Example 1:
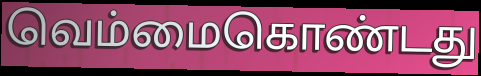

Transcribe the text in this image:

வெம்மைகொண்டது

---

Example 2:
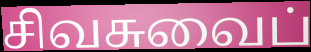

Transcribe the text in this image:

சிவசுவைப்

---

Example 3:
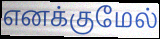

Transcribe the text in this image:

எனக்குமேல்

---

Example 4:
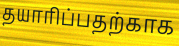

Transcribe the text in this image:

தயாரிப்பதற்காக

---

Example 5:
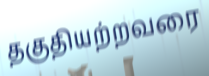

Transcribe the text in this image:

தகுதியற்றவரை